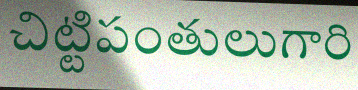
చిట్టిపంతులుగారి